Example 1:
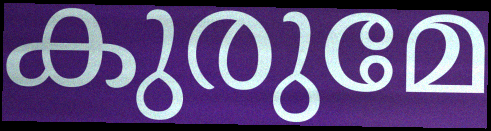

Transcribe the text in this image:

കുരുമേ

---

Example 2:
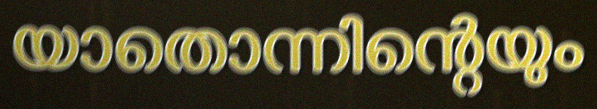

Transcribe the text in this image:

യാതൊന്നിന്റെയും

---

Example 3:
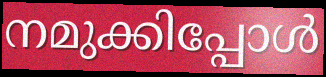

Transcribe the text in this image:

നമുക്കിപ്പോൾ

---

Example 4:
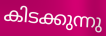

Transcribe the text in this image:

കിടക്കുന്നു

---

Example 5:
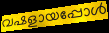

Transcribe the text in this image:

വഷളായപ്പോൾ